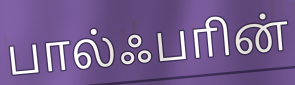
பால்ஃபரின்